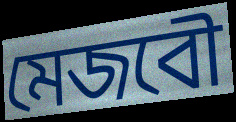
মেজবৌ